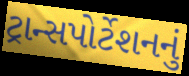
ટ્રાન્સપોર્ટેશનનું